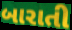
બારાતી